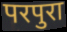
परपुरा